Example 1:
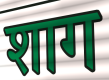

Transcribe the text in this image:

शाग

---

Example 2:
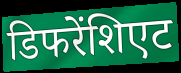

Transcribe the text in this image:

डिफरेंशिएट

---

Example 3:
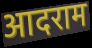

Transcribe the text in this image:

आदराम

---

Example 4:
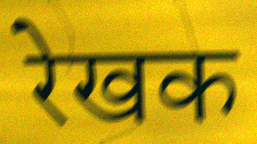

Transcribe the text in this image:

रेखक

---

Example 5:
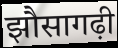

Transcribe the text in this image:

झौसागढ़ी